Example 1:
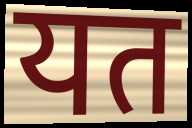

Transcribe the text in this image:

यत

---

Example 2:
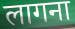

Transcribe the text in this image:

लागना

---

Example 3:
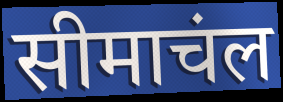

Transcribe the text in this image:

सीमाचंल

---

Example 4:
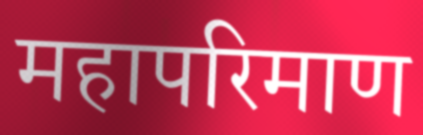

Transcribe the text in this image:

महापरिमाण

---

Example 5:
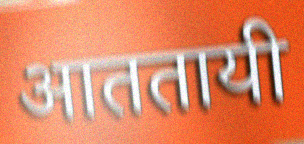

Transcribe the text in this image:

आततायी